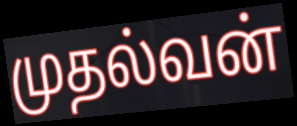
முதல்வன்